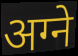
अग्ने